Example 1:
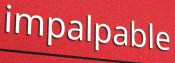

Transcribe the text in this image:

impalpable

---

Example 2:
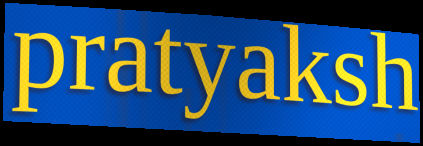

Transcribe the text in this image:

pratyaksh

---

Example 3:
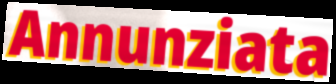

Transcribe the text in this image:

Annunziata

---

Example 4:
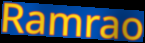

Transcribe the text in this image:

Ramrao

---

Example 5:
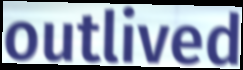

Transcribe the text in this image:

outlived